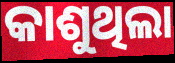
କାଶୁଥିଲା